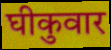
घीकुवार